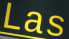
Las